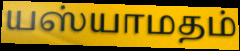
யஸ்யாமதம்